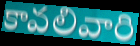
కావలివారి